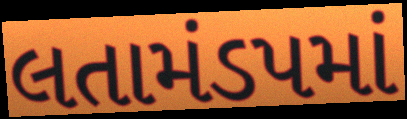
લતામંડપમાં